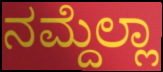
ನಮ್ದೆಲ್ಲಾ